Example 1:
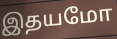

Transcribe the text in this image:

இதயமோ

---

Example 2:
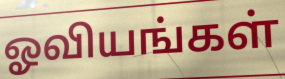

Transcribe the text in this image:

ஓவியங்கள்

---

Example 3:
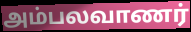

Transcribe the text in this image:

அம்பலவாணர்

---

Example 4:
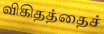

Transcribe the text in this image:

விகிதத்தைச்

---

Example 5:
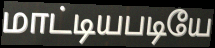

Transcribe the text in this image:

மாட்டியபடியே